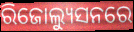
ରିଜୋଲ୍ୟୁସନରେ